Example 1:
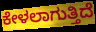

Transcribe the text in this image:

ಕೇಳಲಾಗುತ್ತಿದೆ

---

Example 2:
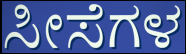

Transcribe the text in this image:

ಸೀಸೆಗಳ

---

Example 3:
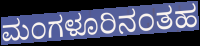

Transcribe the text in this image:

ಮಂಗಳೂರಿನಂತಹ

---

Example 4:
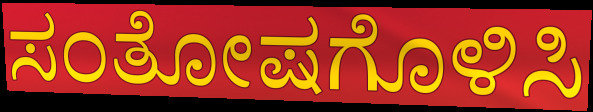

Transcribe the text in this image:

ಸಂತೋಷಗೊಳಿಸಿ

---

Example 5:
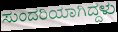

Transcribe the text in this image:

ಸುಂದರಿಯಾಗಿದ್ದಳು